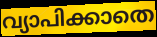
വ്യാപിക്കാതെ